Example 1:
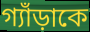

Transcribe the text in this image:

গ্যাঁড়াকে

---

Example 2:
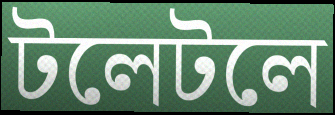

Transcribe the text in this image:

টলেটলে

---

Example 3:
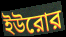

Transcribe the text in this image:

ইউরোর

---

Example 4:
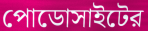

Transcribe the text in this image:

পোডোসাইটের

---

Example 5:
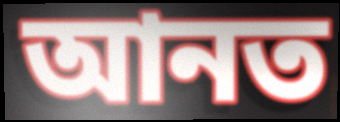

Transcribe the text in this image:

আনত